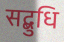
सद्बुधि